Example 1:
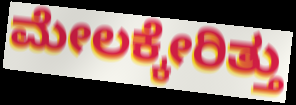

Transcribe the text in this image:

ಮೇಲಕ್ಕೇರಿತ್ತು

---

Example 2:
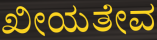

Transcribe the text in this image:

ಖೀಯತೇವ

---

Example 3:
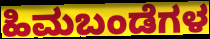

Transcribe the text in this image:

ಹಿಮಬಂಡೆಗಳ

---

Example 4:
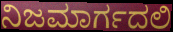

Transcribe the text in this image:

ನಿಜಮಾರ್ಗದಲಿ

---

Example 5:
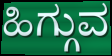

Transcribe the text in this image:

ಹಿಗ್ಗುವ